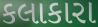
કલાકારા